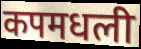
कपमधली